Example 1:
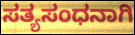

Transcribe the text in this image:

ಸತ್ಯಸಂಧನಾಗಿ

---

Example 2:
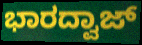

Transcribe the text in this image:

ಭಾರದ್ವಾಜ್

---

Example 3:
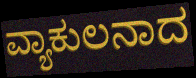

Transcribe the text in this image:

ವ್ಯಾಕುಲನಾದ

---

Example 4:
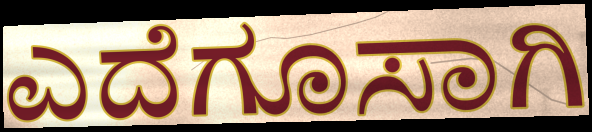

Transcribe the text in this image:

ಎದೆಗೂಸಾಗಿ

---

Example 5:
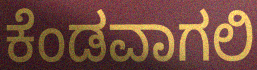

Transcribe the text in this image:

ಕೆಂಡವಾಗಲಿ